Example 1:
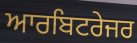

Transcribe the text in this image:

ਆਰਬਿਟਰੇਜਰ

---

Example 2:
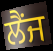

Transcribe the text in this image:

ਲੈਂਜ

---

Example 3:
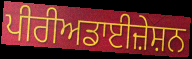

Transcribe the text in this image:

ਪੀਰੀਅਡਾਈਜ਼ੇਸ਼ਨ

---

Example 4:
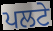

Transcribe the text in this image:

ਪਲਟੇ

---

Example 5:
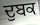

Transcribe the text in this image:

ਦੁਬਕ